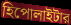
হিপোলাইটার